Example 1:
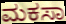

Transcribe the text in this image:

ಮಕಸಾ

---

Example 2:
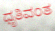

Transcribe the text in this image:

ಧೃತಿವಂತ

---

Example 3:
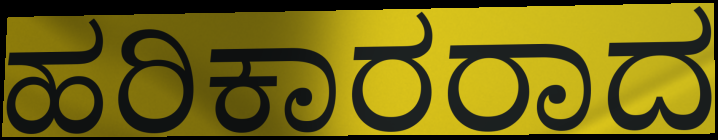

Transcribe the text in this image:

ಹರಿಕಾರರಾದ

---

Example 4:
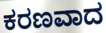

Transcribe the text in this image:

ಕರಣವಾದ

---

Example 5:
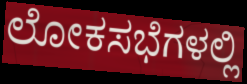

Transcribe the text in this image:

ಲೋಕಸಭೆಗಳಲ್ಲಿ